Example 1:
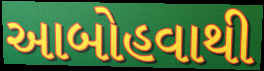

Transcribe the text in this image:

આબોહવાથી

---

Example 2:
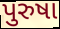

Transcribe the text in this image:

પુરુષા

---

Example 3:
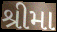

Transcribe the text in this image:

શ્રીમા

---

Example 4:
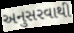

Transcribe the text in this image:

અનુસરવાથી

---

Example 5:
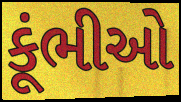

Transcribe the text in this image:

કૂંભીઓ